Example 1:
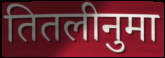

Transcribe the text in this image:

तितलीनुमा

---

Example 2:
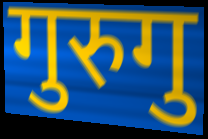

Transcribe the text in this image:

गुरुगु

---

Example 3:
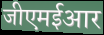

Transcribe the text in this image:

जीएमईआर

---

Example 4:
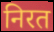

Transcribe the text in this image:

निरत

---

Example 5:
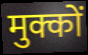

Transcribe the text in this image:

मुक्कों